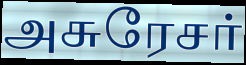
அசுரேசர்